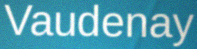
Vaudenay